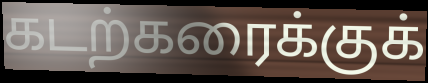
கடற்கரைக்குக்